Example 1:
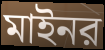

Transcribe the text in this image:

মাইনর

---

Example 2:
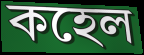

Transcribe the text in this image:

কহেল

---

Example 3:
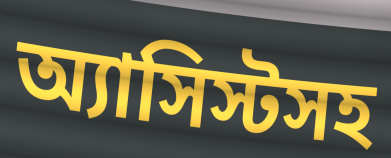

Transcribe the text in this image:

অ্যাসিস্টসহ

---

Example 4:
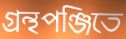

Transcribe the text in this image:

গ্রন্থপঞ্জিতে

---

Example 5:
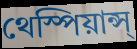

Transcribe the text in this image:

থেস্পিয়ান্স্